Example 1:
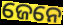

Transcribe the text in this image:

ଜେନେ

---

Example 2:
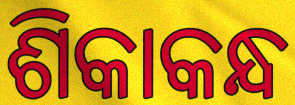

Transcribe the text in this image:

ଶିକାକନ୍ଧ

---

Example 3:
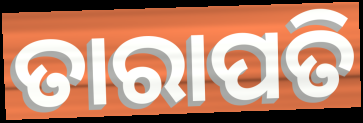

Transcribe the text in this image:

ତାରାପତି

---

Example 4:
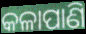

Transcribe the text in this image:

କଳାପାଣି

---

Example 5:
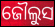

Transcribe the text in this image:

ଜୌଲୁସ